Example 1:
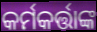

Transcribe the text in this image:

କର୍ମକର୍ତ୍ତାଙ୍କ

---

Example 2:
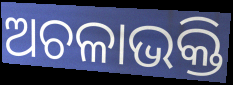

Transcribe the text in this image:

ଅଚଳାଭକ୍ତି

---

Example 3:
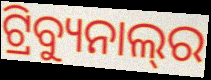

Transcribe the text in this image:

ଟ୍ରିବ୍ୟୁନାଲ୍‍ର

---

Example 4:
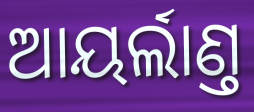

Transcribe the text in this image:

ଆୟର୍ଲାଣ୍ତ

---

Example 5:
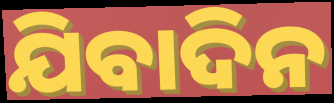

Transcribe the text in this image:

ଯିବାଦିନ